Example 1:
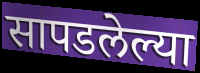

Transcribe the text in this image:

सापडलेल्‍या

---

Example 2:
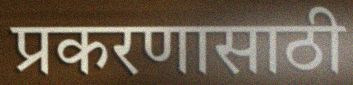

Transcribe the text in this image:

प्रकरणासाठी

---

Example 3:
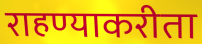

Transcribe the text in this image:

राहण्याकरीता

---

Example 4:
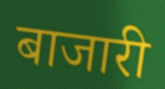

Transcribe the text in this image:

बाजारी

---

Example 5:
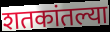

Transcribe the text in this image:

शतकांतल्या